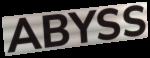
ABYSS